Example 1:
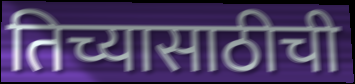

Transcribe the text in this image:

तिच्यासाठीची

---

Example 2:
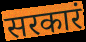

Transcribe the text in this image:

सरकारं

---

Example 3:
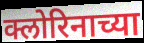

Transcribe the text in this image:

क्लोरिनाच्या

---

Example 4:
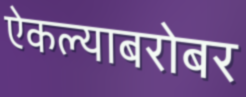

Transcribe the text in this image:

ऐकल्याबरोबर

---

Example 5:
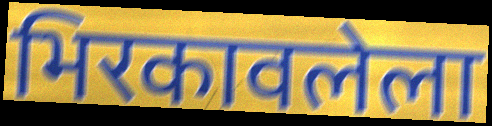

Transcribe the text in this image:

भिरकावलेला